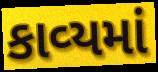
કાવ્‍યમાં